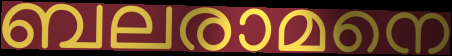
ബലരാമനെ